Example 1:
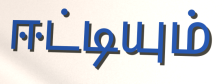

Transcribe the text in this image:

ஈட்டியும்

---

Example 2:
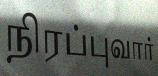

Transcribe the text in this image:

நிரப்புவார்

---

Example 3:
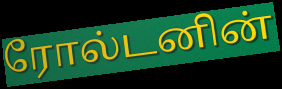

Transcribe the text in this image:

ரோல்டனின்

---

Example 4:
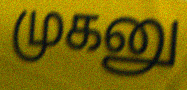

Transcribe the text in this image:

முகனு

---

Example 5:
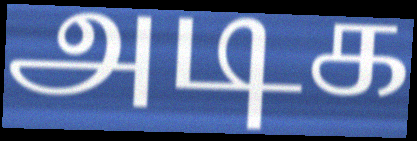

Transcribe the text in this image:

அடிக